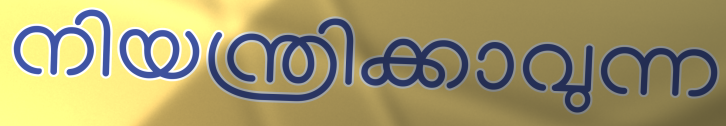
നിയന്ത്രിക്കാവുന്ന